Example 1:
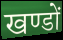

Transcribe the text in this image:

खण्डों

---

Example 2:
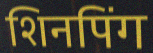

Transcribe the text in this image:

शिनपिंग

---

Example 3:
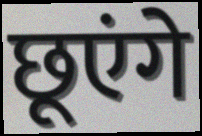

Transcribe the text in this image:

छूएंगे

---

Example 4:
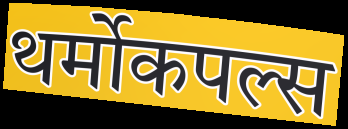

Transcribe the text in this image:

थर्मोकपल्स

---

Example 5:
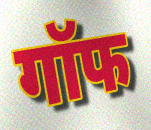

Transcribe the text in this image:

गॉफ